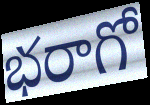
భరాగో